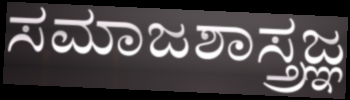
ಸಮಾಜಶಾಸ್ತ್ರಜ್ಞ